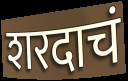
शरदाचं